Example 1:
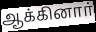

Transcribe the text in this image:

ஆக்கினார்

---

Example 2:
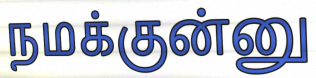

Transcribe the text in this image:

நமக்குன்னு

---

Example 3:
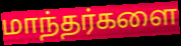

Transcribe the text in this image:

மாந்தர்களை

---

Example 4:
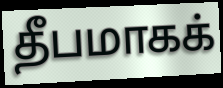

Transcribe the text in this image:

தீபமாகக்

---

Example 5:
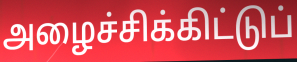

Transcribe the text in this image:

அழைச்சிக்கிட்டுப்